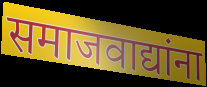
समाजवाद्यांना